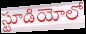
స్టూడియోలో